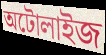
অটোলাইজ